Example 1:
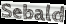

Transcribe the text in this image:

Sebald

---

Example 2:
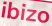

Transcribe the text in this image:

ibizo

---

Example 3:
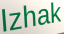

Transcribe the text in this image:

Izhak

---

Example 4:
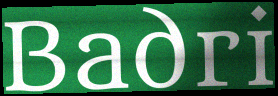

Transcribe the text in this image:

Badri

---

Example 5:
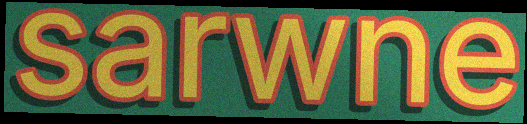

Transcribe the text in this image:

sarwne